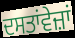
ਦਸਤਾਂਵੇਜ਼ਾਂ